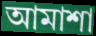
আমাশা